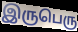
இருபெரு